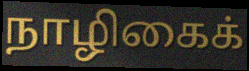
நாழிகைக்